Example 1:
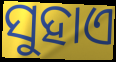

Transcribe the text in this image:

ସୁହାଏ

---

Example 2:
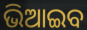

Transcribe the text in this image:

ଭିଆଇବ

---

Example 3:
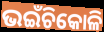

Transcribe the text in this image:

ଭଇଁଚିକୋଳି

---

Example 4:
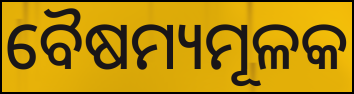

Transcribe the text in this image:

ବୈଷମ୍ୟମୂଳକ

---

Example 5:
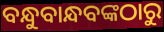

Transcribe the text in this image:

ବନ୍ଧୁବାନ୍ଧବଙ୍କଠାରୁ